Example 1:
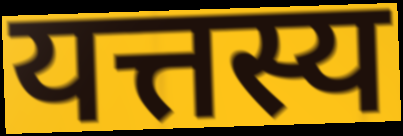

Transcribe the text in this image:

यत्तस्य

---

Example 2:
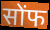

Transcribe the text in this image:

सोंफ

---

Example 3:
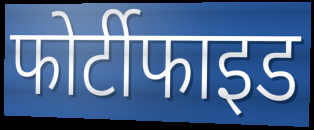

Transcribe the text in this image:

फोर्टीफाइड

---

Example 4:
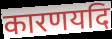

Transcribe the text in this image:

कारणयदि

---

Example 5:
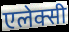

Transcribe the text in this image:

एलेक्सी